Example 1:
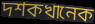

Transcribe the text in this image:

দশকখানেক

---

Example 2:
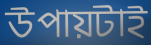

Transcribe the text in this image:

উপায়টাই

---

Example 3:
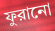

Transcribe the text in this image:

ফুরানো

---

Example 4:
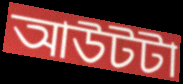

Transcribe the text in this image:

আউটটা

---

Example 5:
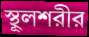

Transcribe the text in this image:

স্থূলশরীর